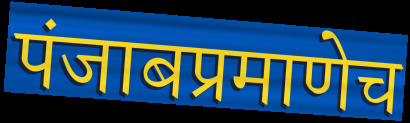
पंजाबप्रमाणेच